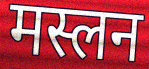
मस्लन